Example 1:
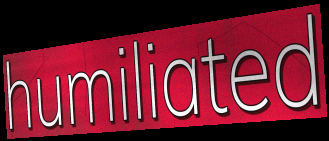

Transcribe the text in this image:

humiliated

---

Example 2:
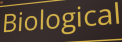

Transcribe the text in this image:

Biological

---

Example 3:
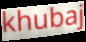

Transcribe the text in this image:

khubaj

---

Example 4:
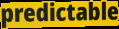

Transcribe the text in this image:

predictable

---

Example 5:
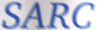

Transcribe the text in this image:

SARC